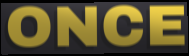
ONCE